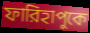
ফারিহাপুকে